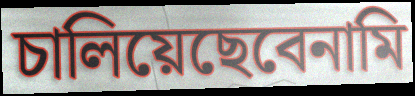
চালিয়েছেবেনামি